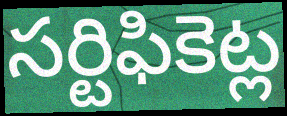
సర్టిఫికెట్ల